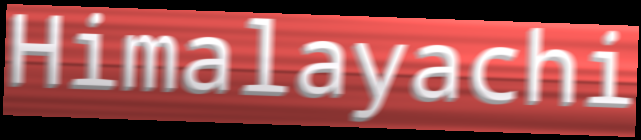
Himalayachi